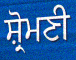
ਸ਼੍ਰੋਮਣੀ